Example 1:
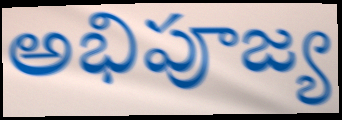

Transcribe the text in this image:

అభిపూజ్య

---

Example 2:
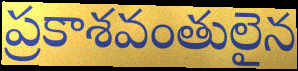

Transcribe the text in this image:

ప్రకాశవంతులైన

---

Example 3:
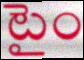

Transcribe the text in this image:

టైం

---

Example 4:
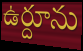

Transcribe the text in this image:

ఉర్దూను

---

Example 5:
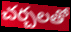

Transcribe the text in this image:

చర్చలతో